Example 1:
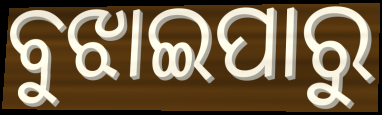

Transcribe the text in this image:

ବୁଝାଇପାରୁ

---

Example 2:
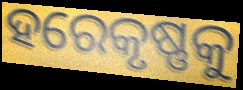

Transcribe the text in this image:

ହରେକୃଷ୍ଣକୁ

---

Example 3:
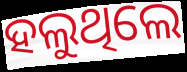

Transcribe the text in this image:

ହଲୁଥିଲେ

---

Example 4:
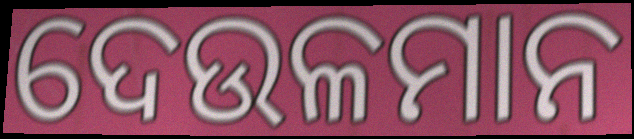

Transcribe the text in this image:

ଦେଉଳମାନ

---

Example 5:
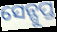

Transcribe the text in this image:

ସେନ୍ଗୁପ୍ତ